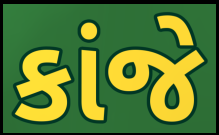
કાંજે